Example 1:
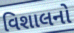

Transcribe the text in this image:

વિશાલનો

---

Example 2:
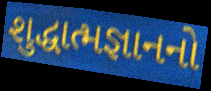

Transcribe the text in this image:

શુદ્ધાત્મજ્ઞાનનો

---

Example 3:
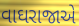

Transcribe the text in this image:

વાઘરાજાએ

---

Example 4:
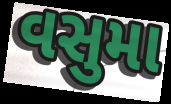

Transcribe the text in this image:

વસુમા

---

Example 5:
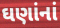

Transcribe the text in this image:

ઘણાંનાં